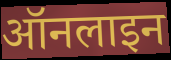
ऑनलाइन